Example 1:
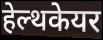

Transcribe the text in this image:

हेल्थकेयर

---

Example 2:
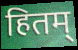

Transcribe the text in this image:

हितम्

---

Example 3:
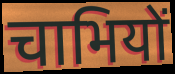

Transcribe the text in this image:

चाभियों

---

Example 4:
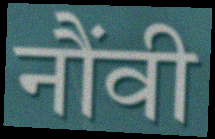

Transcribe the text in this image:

नौंवी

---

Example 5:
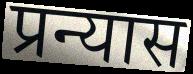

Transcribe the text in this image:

प्रन्यास